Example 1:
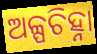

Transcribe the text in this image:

ଅଳ୍ପଚିହ୍ନା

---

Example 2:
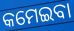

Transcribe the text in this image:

କମେଇବା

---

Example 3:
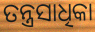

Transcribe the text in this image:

ତନ୍ତ୍ରସାଧିକା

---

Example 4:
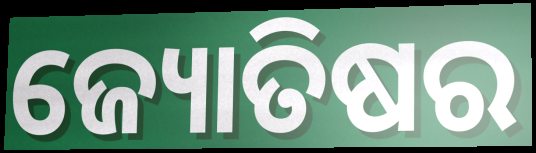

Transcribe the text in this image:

ଜ୍ୟୋତିଷର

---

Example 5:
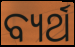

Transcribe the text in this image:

ବ୍ଯର୍ଥ